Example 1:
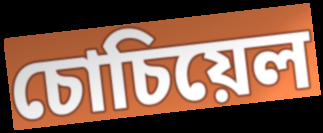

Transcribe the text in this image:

চোচিয়েল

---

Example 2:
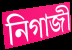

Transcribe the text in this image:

নিগাজী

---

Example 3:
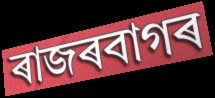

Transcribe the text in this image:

ৰাজৰবাগৰ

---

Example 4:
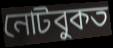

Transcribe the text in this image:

নোটবুকত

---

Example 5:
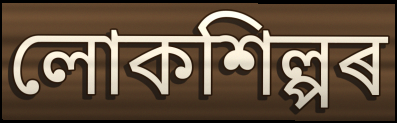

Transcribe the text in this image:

লোকশিল্পৰ